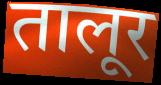
तालूर